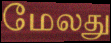
மேலது